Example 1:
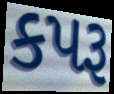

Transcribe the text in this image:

કપરૂ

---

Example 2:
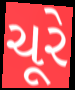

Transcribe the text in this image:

ચૂરે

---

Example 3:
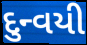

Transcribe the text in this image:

દુન્વયી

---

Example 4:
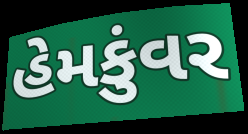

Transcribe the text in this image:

હેમકુંવર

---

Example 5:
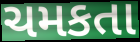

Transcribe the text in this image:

ચમકતા